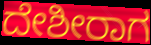
ದೇಶೀರಾಗ